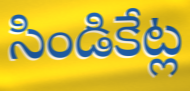
సిండికేట్ల